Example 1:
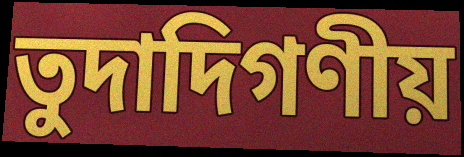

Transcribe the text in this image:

তুদাদিগণীয়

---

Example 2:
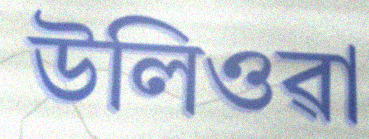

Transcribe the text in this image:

উলিওৱা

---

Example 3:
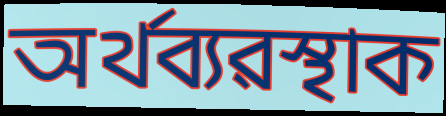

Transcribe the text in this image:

অৰ্থব্যৱস্থাক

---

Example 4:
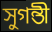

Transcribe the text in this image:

সুগন্তী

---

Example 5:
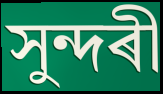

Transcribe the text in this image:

সুন্দৰী